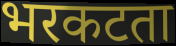
भरकटता